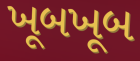
ખૂબખૂબ